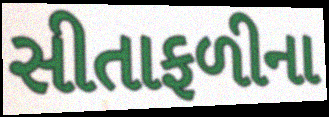
સીતાફળીના